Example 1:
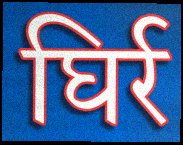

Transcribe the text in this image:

घिर्र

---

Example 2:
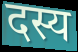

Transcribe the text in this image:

दस्य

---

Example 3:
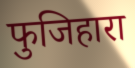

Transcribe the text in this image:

फुजिहारा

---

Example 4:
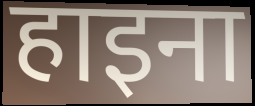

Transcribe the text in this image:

हाइना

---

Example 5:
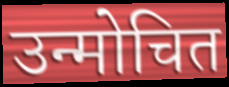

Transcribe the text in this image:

उन्मोचित